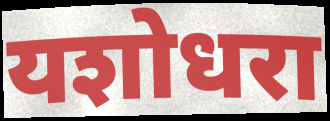
यशोधरा